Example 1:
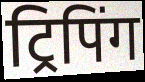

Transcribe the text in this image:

ट्रिपिंग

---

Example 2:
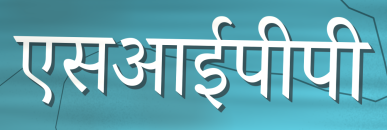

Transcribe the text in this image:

एसआईपीपी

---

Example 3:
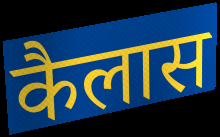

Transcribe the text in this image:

कैलास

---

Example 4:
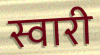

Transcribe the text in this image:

स्वारी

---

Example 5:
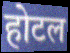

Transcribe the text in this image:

होटल